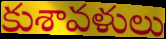
కుశావళులు